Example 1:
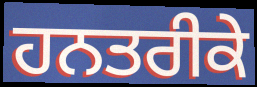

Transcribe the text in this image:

ਹਨਤਰੀਕੇ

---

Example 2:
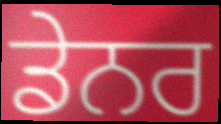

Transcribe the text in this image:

ਡੇਨਰ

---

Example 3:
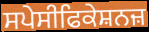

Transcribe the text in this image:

ਸਪੇਸੀਫਿਕੇਸ਼ਨਜ਼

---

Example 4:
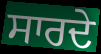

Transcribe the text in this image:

ਸਾਰਦੇ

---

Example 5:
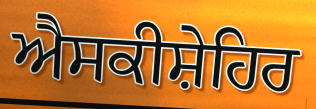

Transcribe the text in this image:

ਐਸਕੀਸ਼ੇਹਿਰ